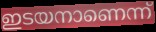
ഇടയനാണെന്ന്